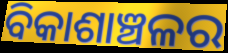
ବିକାଶାଞ୍ଚଳର